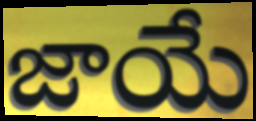
జాయే